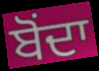
ਬੋੰਦਾ